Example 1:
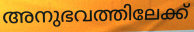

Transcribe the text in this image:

അനുഭവത്തിലേക്ക്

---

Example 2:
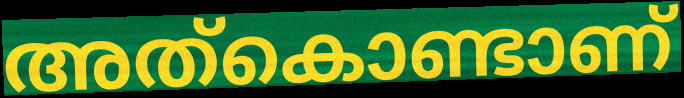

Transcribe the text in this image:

അത്കൊണ്ടാണ്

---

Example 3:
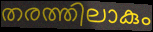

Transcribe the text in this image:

തരത്തിലാകും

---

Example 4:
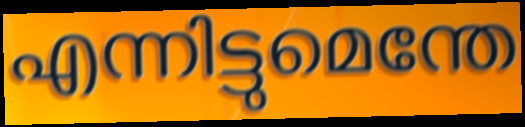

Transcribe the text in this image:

എന്നിട്ടുമെന്തേ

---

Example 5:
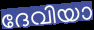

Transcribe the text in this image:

ദേവിയാ